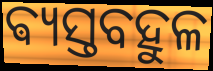
ଵ୍ୟସ୍ତବହୁଳ